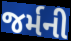
જર્મની